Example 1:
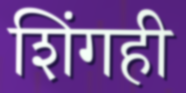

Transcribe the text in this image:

शिंगही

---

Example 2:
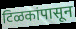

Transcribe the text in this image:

टिळकांपासून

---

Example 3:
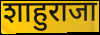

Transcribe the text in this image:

शाहुराजा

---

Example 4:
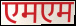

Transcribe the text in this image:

एमएम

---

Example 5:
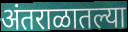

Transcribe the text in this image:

अंतराळातल्या